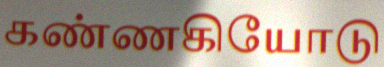
கண்ணகியோடு